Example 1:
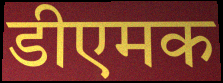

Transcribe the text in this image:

डीएमक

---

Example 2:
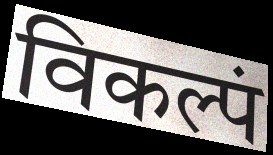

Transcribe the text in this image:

विकल्पं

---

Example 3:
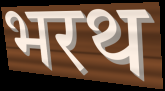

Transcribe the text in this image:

भरथ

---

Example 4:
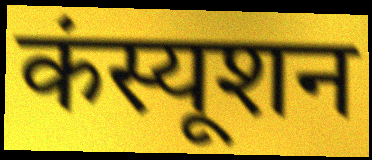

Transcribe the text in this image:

कंस्यूशन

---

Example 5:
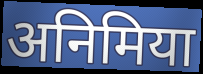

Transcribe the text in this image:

अनिमिया